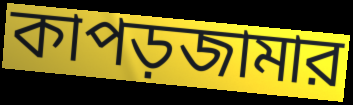
কাপড়জামার